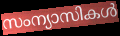
സംന്യാസികൾ